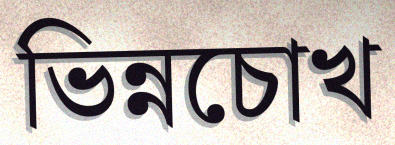
ভিন্নচোখ